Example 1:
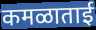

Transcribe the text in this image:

कमळाताई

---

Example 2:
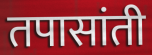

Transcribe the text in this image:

तपासांती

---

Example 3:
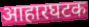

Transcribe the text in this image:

आहारघटक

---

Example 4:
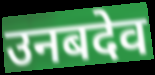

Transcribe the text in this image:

उनबदेव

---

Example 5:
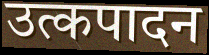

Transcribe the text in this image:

उत्कपादन